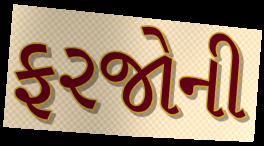
ફરજોની